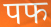
पफ